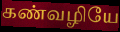
கண்வழியே